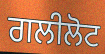
ਗਲੀਲੋਟ